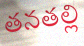
తనతల్లి